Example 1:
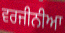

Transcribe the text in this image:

ਵਰਜੀਨੀਆ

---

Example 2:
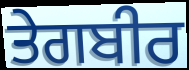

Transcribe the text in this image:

ਤੇਗਬੀਰ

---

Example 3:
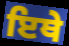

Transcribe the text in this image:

ਇਥੇ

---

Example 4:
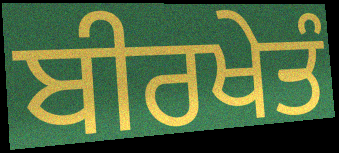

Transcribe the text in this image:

ਬੀਰਖੇਤੰ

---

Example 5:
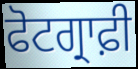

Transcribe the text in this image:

ਫੋਟਗ੍ਰਾਫ਼ੀ